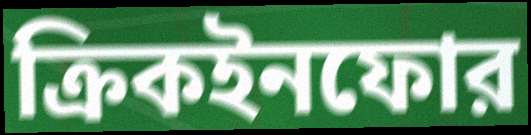
ক্রিকইনফোর